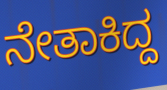
ನೇತಾಕಿದ್ದ